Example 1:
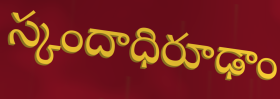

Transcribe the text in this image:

స్కందాధిరూఢాం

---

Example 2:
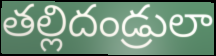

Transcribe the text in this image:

తల్లిదండ్రులా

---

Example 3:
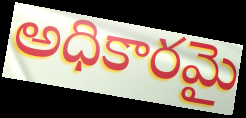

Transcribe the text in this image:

అధికారమై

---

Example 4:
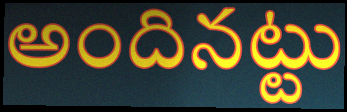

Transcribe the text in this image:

అందినట్టు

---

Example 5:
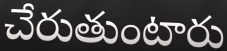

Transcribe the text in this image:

చేరుతుంటారు